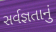
સર્વજ્ઞતાનું